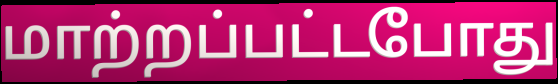
மாற்றப்பட்டபோது